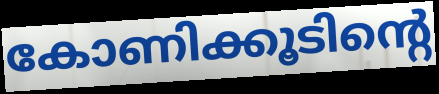
കോണിക്കൂടിന്റെ